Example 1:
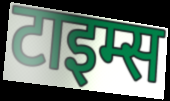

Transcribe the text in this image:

टाइम्स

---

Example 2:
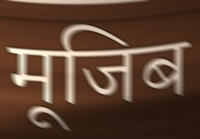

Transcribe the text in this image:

मूजिब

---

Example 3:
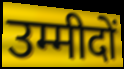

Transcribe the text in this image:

उम्मीदों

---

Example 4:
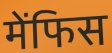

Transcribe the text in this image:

मेंफिस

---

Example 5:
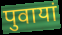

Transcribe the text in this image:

पुवायां